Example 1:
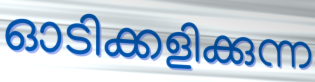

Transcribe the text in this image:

ഓടിക്കളിക്കുന്ന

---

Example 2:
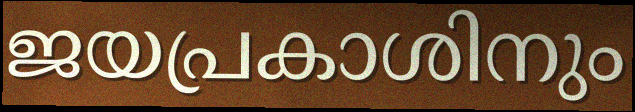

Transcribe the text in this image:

ജയപ്രകാശിനും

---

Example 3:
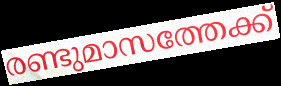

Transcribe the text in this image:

രണ്ടുമാസത്തേക്ക്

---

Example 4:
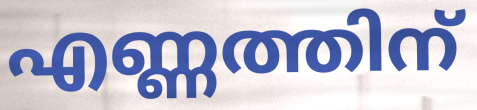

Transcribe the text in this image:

എണ്ണത്തിന്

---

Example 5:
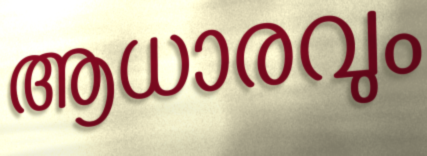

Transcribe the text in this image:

ആധാരവും